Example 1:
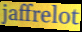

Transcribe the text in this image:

jaffrelot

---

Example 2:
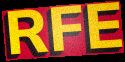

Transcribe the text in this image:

RFE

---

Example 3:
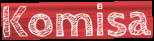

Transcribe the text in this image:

Komisa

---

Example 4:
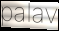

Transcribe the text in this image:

palav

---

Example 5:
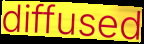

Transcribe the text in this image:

diffused